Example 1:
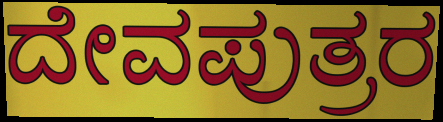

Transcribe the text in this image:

ದೇವಪುತ್ರರ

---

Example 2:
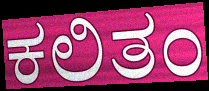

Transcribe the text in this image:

ಕಲಿತಂ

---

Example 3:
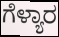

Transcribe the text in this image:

ಗೆಳ್ಯಾರ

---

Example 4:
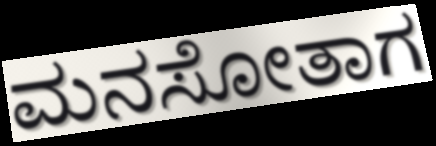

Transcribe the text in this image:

ಮನಸೋತಾಗ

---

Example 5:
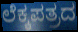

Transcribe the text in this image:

ಲೆಕ್ಕಪತ್ರದ